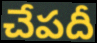
చేపదీ